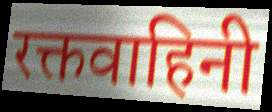
रक्तवाहिनी